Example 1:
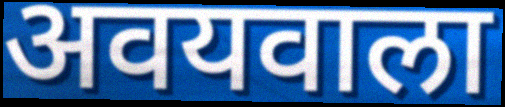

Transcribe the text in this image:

अवयवाला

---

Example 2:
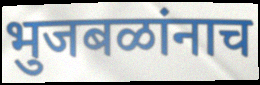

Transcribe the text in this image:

भुजबळांनाच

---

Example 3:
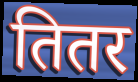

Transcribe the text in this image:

तितर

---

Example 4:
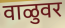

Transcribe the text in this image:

वाळुवर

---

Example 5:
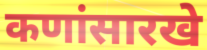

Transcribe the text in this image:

कणांसारखे